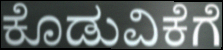
ಕೊಡುವಿಕೆಗೆ